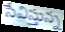
సేవిస్తున్న